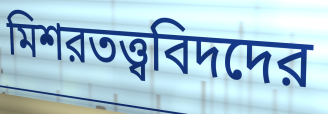
মিশরতত্ত্ববিদদের